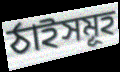
ঠাইসমূহ